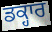
ਡਕ੍ਹਾਰ